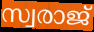
സ്വരാജ്